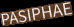
PASIPHAE